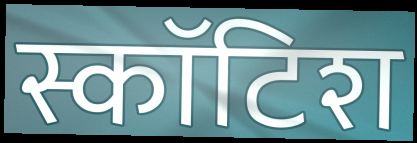
स्कॉटिश